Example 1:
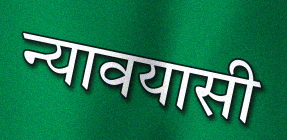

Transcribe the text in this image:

न्यावयासी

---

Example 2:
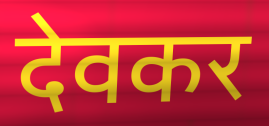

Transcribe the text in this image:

देवकर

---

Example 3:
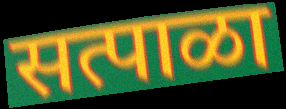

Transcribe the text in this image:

सत्पाळा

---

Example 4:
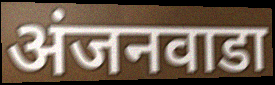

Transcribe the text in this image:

अंजनवाडा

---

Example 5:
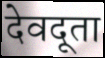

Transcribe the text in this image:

देवदूता